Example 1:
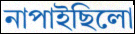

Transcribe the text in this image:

নাপাইছিলো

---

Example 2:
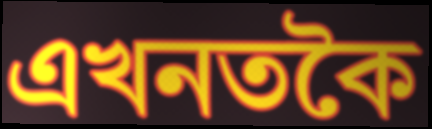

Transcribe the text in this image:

এখনতকৈ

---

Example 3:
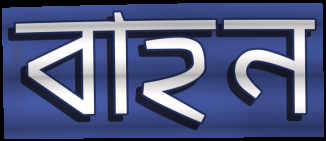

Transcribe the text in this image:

বাহন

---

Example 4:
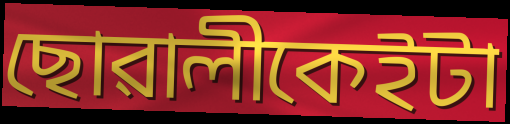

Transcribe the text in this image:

ছোৱালীকেইটা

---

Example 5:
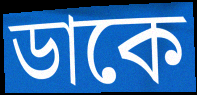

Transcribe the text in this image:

ডাকে